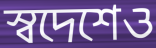
স্বদেশেও